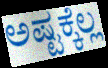
ಅಷ್ಟಕ್ಕೆಲ್ಲ